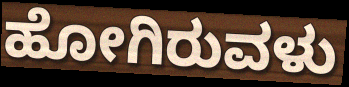
ಹೋಗಿರುವಳು